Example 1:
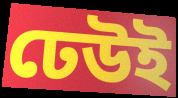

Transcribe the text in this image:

ঢেউই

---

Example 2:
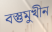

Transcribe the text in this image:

বস্তুমুখীন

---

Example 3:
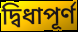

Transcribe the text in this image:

দ্বিধাপূর্ণ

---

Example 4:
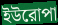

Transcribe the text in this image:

ইউরোপা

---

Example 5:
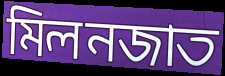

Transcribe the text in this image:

মিলনজাত